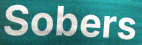
Sobers